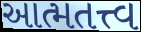
આત્મતત્ત્વ